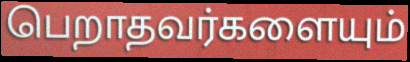
பெறாதவர்களையும்